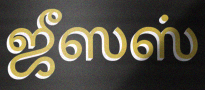
ஜீஸஸ்